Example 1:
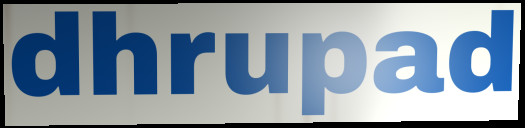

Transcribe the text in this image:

dhrupad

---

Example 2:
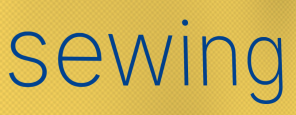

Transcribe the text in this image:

sewing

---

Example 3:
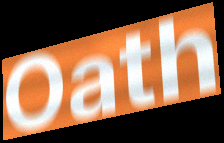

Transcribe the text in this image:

Oath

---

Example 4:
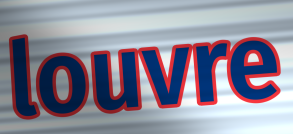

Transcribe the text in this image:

louvre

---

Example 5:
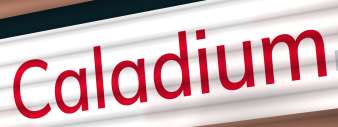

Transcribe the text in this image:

Caladium